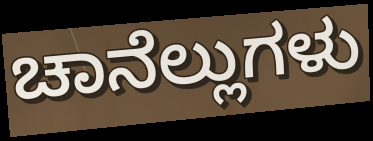
ಚಾನೆಲ್ಲುಗಳು